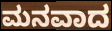
ಮನವಾದ